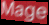
Mage